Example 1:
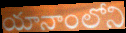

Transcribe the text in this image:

యానాంలోని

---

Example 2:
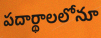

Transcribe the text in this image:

పదార్థాలలోనూ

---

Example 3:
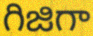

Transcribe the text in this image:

గిజిగా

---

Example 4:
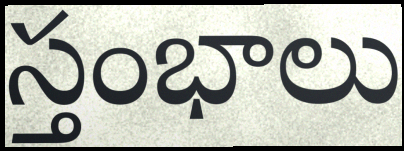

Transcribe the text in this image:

స్తంభాలు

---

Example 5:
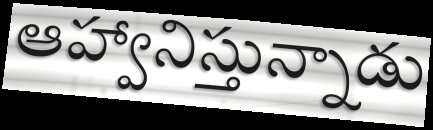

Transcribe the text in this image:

ఆహ్వానిస్తున్నాడు